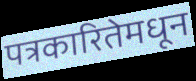
पत्रकारितेमधून